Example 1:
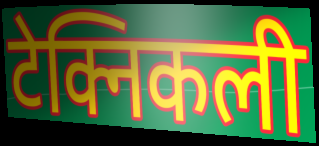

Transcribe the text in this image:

टेक्निकली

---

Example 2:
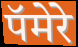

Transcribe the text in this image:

पॅमेरे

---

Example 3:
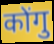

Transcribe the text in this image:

कोंगु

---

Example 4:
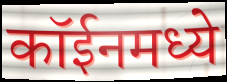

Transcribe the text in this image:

कॉईनमध्ये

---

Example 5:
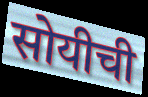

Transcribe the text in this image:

सोयीची